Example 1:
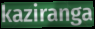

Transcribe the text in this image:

kaziranga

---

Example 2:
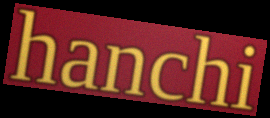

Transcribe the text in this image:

hanchi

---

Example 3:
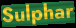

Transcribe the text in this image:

Sulphar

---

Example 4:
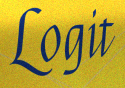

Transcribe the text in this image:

Logit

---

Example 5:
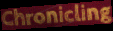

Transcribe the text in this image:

Chronicling